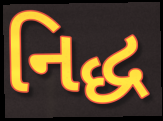
નિદ્ધ